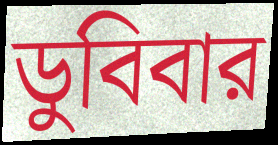
ডুবিবার